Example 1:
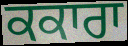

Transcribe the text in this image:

ਕਕਾਰਾ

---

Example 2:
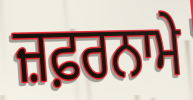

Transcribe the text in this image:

ਜ਼ਫ਼ਰਨਾਮੇ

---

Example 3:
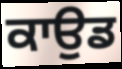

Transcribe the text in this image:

ਕਾਉਡ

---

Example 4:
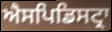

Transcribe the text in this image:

ਐਸਪਿਡਿਸਟ੍ਰਾ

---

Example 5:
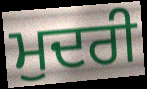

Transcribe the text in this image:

ਮੁਦਰੀ